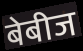
बेबीज